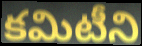
కమిటీని